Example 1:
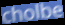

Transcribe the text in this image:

cholbe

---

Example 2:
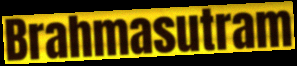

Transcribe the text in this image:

Brahmasutram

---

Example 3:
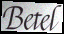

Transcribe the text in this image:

Betel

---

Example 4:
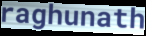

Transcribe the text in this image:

raghunath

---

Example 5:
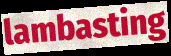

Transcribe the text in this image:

lambasting